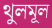
থুলমূল